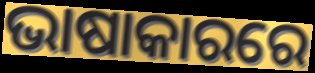
ଭାଷାକାରରେ